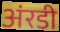
अंरडी